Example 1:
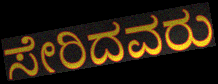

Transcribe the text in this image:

ಸೇರಿದವರು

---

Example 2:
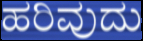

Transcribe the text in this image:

ಹರಿವುದು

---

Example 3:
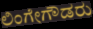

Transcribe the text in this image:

ಲಿಂಗೇಗೌಡರು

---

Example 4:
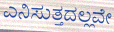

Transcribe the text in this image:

ಎನಿಸುತ್ತದಲ್ಲವೇ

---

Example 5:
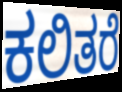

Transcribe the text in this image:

ಕಲಿತರೆ